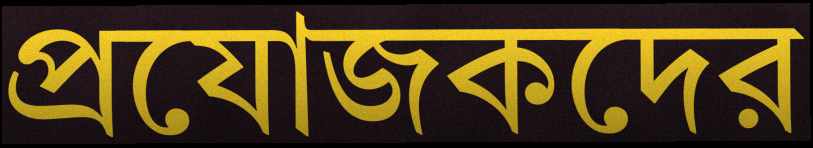
প্রযোজকদের